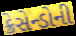
ક્રેસેન્ડોની